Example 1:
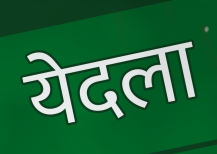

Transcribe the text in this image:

येदला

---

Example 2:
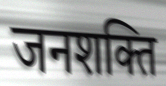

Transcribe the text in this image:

जनशक्ति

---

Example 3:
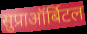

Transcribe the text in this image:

सुप्राऑर्बिटल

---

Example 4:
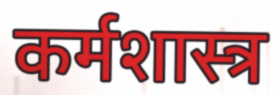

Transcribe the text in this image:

कर्मशास्त्र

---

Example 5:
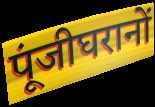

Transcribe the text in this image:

पूंजीघरानों